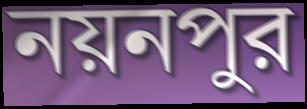
নয়নপুর